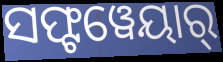
ସଫ୍ଟୱେୟାର୍